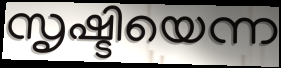
സൃഷ്ടിയെന്ന